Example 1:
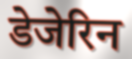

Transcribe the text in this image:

डेजेरिन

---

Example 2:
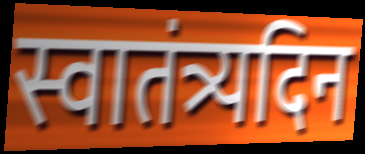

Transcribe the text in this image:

स्वातंत्र्यदिन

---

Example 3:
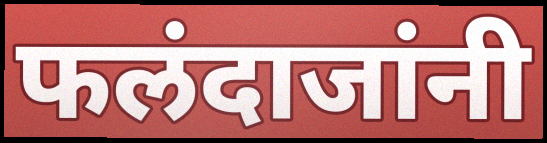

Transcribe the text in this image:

फलंदाजांनी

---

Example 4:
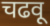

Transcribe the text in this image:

चढवू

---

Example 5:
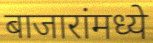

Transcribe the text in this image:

बाजारांमध्ये